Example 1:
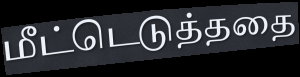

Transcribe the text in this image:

மீட்டெடுத்ததை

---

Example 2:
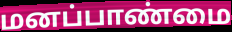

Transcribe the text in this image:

மனப்பாண்மை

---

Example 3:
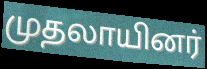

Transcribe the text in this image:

முதலாயினர்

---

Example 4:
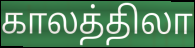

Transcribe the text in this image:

காலத்திலா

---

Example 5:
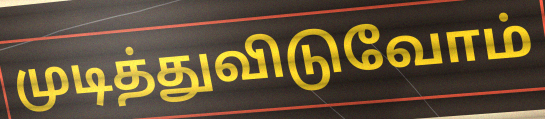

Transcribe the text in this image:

முடித்துவிடுவோம்